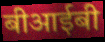
बीआईबी